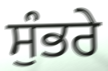
ਸੁੰਭਰੇ